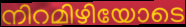
നിറമിഴിയോടെ